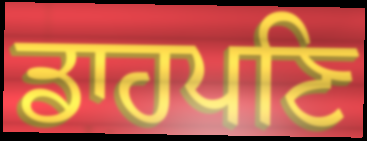
ਡਾਹਪਣਿ